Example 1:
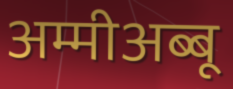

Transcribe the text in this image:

अम्मीअब्बू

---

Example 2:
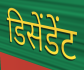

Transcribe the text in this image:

डिसेंडेंट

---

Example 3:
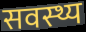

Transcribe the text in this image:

सवस्थ्य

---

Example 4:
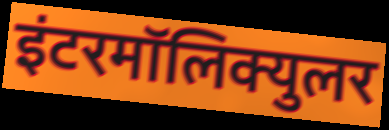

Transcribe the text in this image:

इंटरमॉलिक्युलर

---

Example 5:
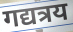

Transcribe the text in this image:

गद्यत्रय